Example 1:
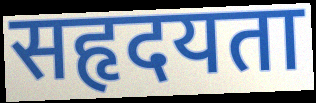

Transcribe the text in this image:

सहृदयता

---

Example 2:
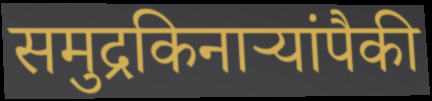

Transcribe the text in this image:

समुद्रकिनाऱ्यांपैकी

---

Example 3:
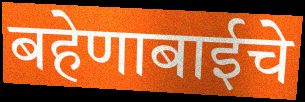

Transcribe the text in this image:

बहेणाबाईचे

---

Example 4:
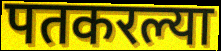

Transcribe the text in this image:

पतकरल्या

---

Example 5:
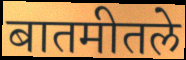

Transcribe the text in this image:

बातमीतले